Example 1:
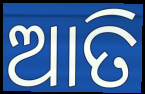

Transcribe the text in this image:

ଆତି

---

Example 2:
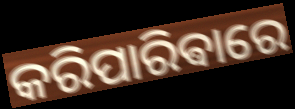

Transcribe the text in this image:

କରିପାରିଵାରେ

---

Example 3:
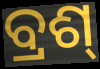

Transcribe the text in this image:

ବ୍ରଶ୍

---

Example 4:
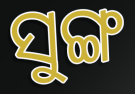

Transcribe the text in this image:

ସୁଙ୍ଗ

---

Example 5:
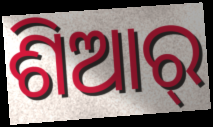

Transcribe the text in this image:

ଶିଆର୍